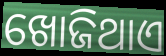
ଖୋଜିଥାଏ